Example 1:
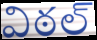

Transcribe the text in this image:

విఠల్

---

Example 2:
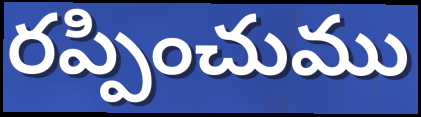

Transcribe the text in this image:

రప్పించుము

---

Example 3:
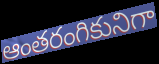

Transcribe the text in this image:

ఆంతరంగికునిగా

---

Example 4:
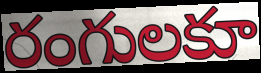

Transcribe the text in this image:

రంగులకూ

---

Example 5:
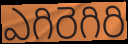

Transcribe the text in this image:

ఎగిరెగిరి